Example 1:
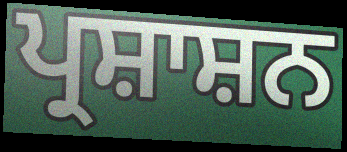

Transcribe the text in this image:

ਪ੍ਰਸ਼ਾਸ਼ਨ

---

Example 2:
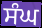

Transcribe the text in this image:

ਸੰਘ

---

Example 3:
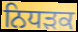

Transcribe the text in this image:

ਨਿਧਡ਼ਕ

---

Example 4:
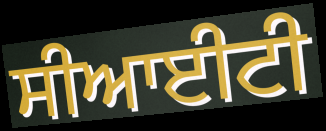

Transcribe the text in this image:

ਸੀਆਈਟੀ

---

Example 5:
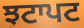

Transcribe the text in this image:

ਝਟਾਪਟ